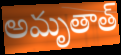
అమృతాత్